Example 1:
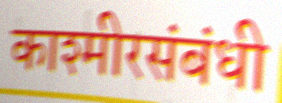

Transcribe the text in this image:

काश्मीरसंबंधी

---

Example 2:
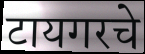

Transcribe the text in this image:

टायगरचे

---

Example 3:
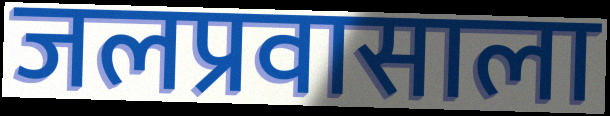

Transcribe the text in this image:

जलप्रवासाला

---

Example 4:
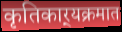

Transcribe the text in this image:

कृतिकार्यक्रमात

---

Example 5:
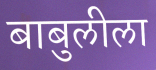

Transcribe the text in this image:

बाबुलीला